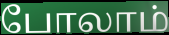
போலாம்